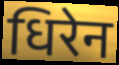
धिरेन